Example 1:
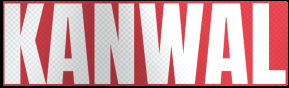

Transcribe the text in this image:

KANWAL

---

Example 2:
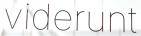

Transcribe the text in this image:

viderunt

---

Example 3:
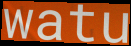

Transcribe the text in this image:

watu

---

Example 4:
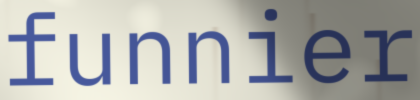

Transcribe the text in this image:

funnier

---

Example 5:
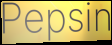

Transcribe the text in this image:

Pepsin